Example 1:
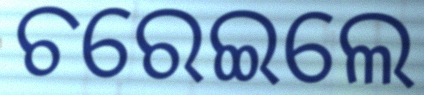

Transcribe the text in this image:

ଚରେଇଲେ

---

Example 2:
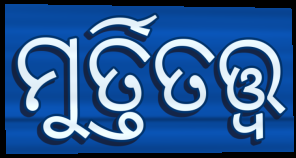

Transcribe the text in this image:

ମୁର୍ତ୍ତିତତ୍ତ୍ବ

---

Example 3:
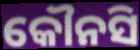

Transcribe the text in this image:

କୌନସି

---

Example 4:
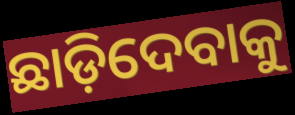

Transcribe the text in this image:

ଛାଡ଼ିଦେବାକୁ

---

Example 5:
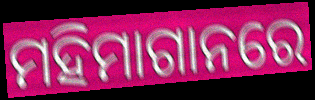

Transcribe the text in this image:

ମହିମାଗାନରେ